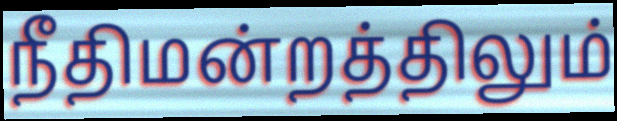
நீதிமன்றத்திலும்